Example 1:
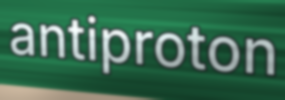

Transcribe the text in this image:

antiproton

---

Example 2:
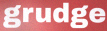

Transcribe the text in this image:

grudge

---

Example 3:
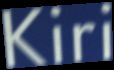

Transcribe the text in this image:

Kiri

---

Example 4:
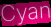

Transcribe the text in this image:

Cyan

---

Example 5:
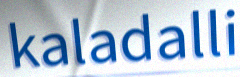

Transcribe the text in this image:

kaladalli